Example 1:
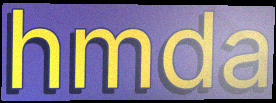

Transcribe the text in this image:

hmda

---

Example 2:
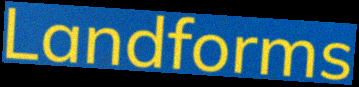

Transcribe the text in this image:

Landforms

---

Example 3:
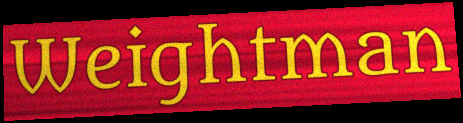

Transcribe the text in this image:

Weightman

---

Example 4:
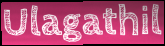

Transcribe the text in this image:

Ulagathil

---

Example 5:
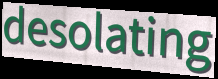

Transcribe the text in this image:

desolating